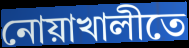
নোয়াখালীতে